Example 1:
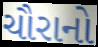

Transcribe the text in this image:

ચૌરાનો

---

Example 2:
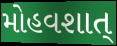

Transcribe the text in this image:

મોહવશાત્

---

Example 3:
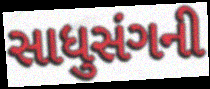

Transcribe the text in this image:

સાધુસંગની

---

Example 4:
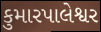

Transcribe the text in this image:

કુમારપાલેશ્વર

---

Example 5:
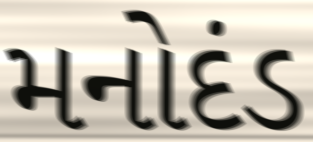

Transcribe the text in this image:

મનોદંડ